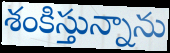
శంకిస్తున్నాను